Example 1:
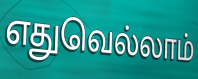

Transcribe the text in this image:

எதுவெல்லாம்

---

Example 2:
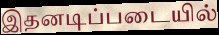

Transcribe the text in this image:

இதனடிப்படையில்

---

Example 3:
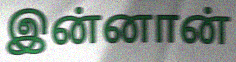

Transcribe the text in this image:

இன்னான்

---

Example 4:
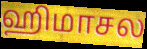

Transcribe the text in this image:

ஹிமாசல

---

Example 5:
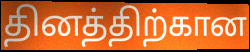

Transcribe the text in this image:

தினத்திற்கான